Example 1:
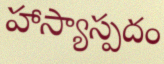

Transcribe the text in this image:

హాస్యాస్పదం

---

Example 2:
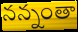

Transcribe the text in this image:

నన్నంతా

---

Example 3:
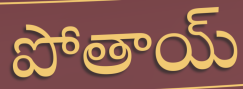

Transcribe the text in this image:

పోతాయ్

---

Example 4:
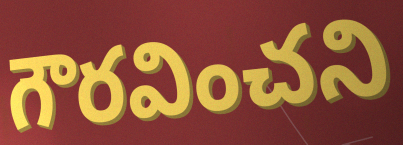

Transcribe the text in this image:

గౌరవించని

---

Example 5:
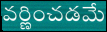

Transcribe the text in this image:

వర్ణించడమే